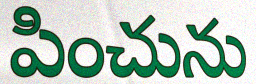
పించును